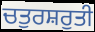
ਚਤੁਰਸ਼ਰੁਤੀ